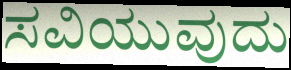
ಸವಿಯುವುದು